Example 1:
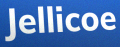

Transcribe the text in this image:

Jellicoe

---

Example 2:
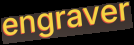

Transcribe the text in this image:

engraver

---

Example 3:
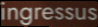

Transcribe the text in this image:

ingressus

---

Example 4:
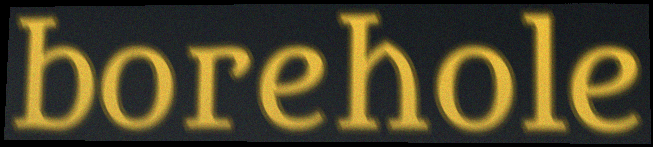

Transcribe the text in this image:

borehole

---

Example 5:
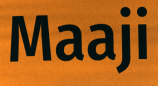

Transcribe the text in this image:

Maaji